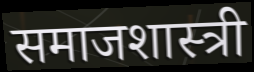
समाजशास्त्री